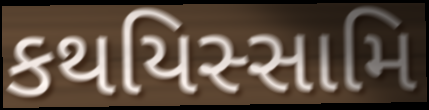
કથયિસ્સામિ